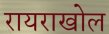
रायराखोल